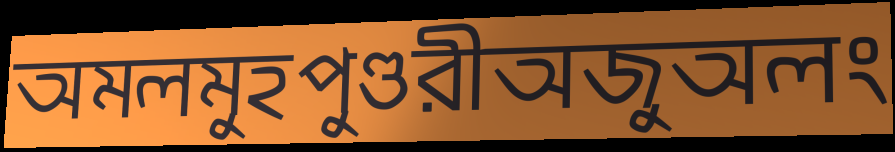
অমলমুহপুণ্ডরীঅজুঅলং